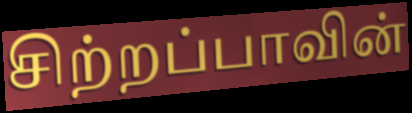
சிற்றப்பாவின்